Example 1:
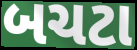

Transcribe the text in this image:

બચટા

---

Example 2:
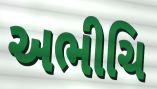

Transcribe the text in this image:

અભીચિ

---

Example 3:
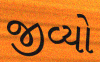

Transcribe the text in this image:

જીવ્યો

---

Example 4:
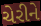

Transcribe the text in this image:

ચેરીને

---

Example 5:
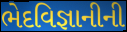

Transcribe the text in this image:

ભેદવિજ્ઞાનીની